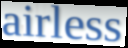
airless